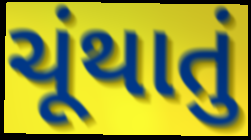
ચૂંથાતું